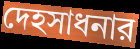
দেহসাধনার